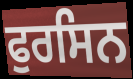
ਫੁਰਸਿਨ